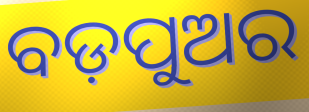
ବଡ଼ପୁଅର